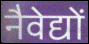
नैवेद्यों